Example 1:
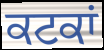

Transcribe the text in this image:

ਕਟਕਾਂ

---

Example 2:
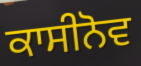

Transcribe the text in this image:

ਕਾਸੀਨੋਵ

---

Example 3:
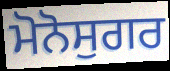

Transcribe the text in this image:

ਮੋਨੋਸੁਗਰ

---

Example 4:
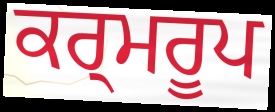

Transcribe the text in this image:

ਕਰ੍ਮਰੂਪ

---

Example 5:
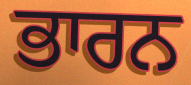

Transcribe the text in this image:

ਭਾਰਨ